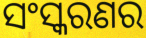
ସଂସ୍କରଣର